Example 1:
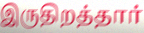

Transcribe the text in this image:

இருதிறத்தார்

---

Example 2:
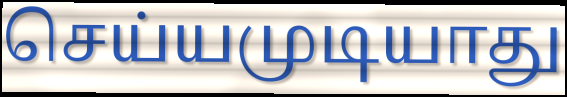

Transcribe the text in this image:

செய்யமுடியாது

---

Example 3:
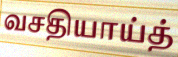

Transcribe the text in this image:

வசதியாய்த்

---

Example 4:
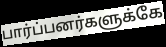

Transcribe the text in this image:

பார்ப்பனர்களுக்கே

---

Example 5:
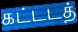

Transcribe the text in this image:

கட்டடத்